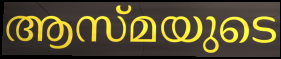
ആസ്മയുടെ